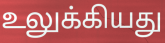
உலுக்கியது